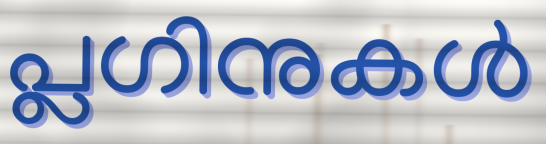
പ്ലഗിനുകൾ